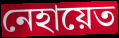
নেহায়েত